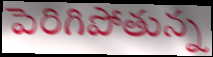
పెరిగిపోతున్న